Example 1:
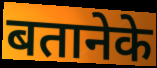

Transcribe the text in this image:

बतानेके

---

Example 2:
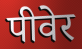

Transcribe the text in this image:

पीवेर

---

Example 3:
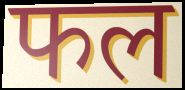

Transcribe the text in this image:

फल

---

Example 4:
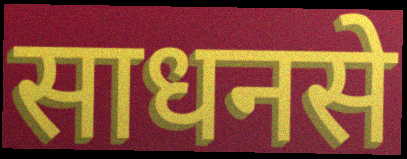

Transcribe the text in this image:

साधनसे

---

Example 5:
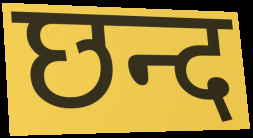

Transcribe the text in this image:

छन्द